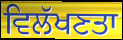
ਵਿਲੱਖਣਤਾ